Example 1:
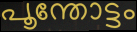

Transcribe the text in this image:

പൂന്തോട്ടം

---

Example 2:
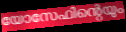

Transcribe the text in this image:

യോസേഫിന്റെയും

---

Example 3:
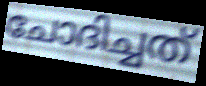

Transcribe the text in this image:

ചോദിച്ചത്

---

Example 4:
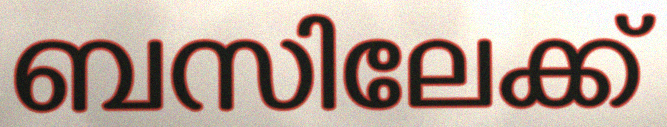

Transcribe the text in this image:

ബസിലേക്ക്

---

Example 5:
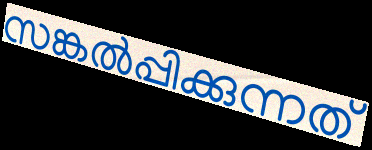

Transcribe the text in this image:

സങ്കൽപ്പിക്കുന്നത്